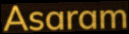
Asaram